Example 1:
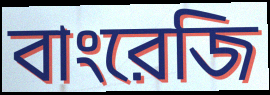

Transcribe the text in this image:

বাংরেজি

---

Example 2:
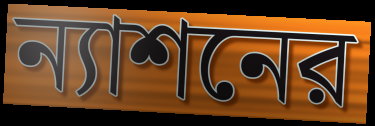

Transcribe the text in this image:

ন্যাশনের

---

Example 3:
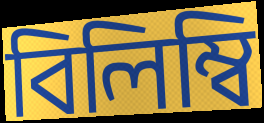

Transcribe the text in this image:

বিলিম্বি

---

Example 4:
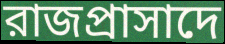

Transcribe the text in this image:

রাজপ্রাসাদে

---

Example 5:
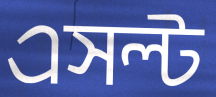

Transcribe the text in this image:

এসল্ট